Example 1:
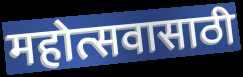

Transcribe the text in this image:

महोत्सवासाठी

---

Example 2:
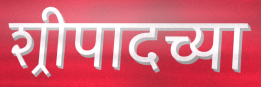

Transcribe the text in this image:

श्रीपादच्या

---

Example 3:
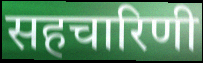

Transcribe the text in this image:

सहचारिणी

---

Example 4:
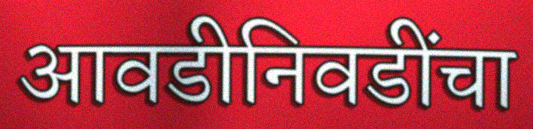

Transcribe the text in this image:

आवडीनिवडींचा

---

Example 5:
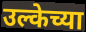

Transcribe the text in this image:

उल्केच्या